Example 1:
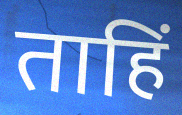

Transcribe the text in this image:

ताहिं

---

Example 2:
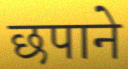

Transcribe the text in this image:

छपाने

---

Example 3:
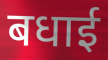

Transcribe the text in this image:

बधाई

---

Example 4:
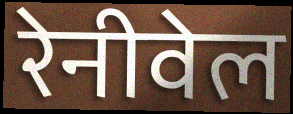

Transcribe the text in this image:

रेनीवेल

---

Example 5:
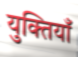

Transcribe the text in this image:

युक्तियाँ